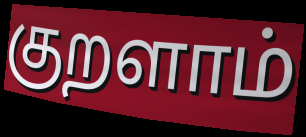
குறளாம்